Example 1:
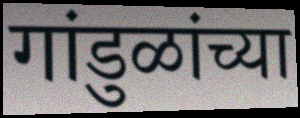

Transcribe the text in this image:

गांडुळांच्या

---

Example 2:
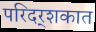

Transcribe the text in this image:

परिदर्शकात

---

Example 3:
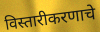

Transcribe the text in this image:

विस्तारीकरणाचे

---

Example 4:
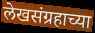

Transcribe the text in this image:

लेखसंग्रहाच्या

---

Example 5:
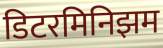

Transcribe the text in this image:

डिटरमिनिझम